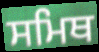
ਸਮਿਥ